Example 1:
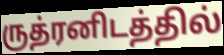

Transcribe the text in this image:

ருத்ரனிடத்தில்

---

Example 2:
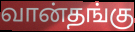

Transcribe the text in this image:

வான்தங்கு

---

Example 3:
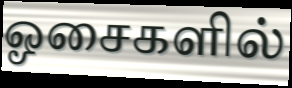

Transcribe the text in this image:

ஓசைகளில்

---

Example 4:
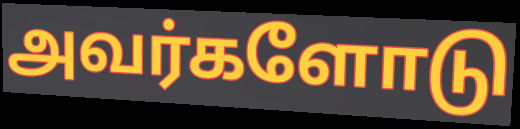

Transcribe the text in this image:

அவர்களோடு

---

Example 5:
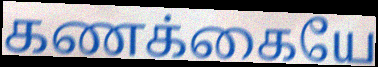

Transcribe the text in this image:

கணக்கையே